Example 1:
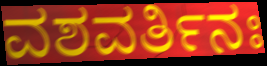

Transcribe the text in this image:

ವಶವರ್ತಿನಃ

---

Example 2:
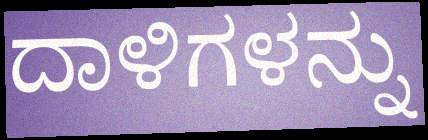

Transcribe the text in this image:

ದಾಳಿಗಳನ್ನು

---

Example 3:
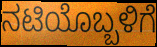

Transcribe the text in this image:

ನಟಿಯೊಬ್ಬಳಿಗೆ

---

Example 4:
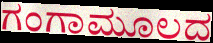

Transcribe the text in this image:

ಗಂಗಾಮೂಲದ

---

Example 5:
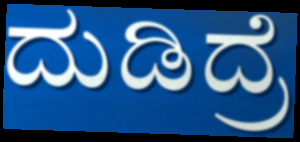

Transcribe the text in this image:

ದುಡಿದ್ರೆ